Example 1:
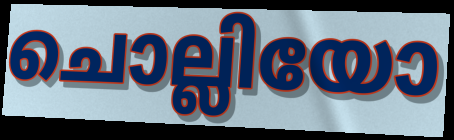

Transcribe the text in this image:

ചൊല്ലിയോ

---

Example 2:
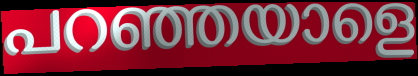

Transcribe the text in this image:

പറഞ്ഞയാളെ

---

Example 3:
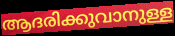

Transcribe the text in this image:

ആദരിക്കുവാനുള്ള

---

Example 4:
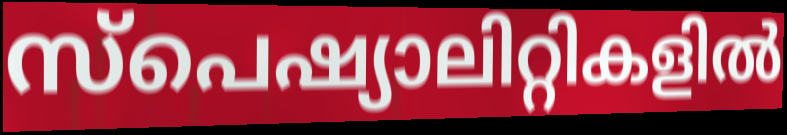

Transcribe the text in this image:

സ്പെഷ്യാലിറ്റികളിൽ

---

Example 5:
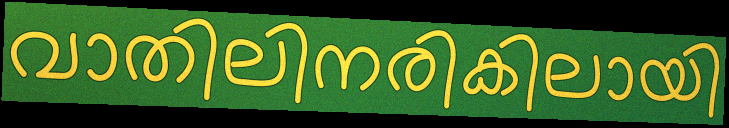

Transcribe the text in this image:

വാതിലിനരികിലായി